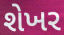
શેખર